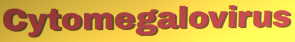
Cytomegalovirus